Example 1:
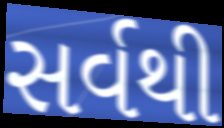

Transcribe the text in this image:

સર્વથી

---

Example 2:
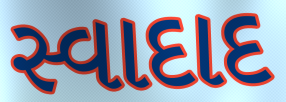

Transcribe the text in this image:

સ્વાદાદ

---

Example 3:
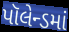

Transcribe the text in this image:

પૉલેન્ડમાં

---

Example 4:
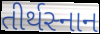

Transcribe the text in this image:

તીર્થસ્નાન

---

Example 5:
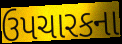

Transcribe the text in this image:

ઉપચારકના